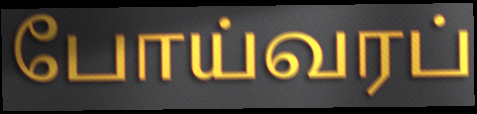
போய்வரப்